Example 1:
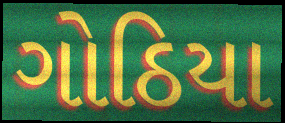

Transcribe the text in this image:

ગોઠિયા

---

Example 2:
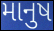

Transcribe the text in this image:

માનુષ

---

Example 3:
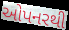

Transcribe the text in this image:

ઓપનરથી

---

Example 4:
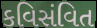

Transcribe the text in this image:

કવિસંવિત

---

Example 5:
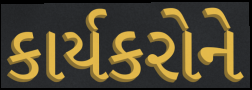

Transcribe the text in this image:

કાર્યકરોને